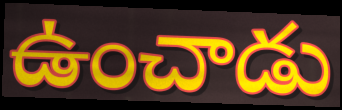
ఉంచాడు